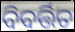
ବିବର୍ତ୍ତିତ